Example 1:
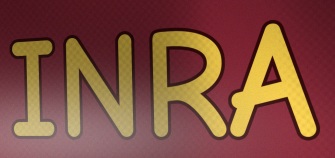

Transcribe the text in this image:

INRA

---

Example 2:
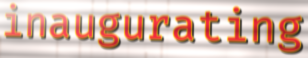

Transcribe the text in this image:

inaugurating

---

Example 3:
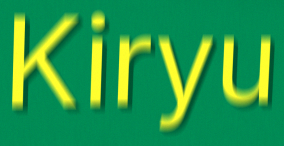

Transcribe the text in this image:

Kiryu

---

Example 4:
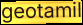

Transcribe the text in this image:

geotamil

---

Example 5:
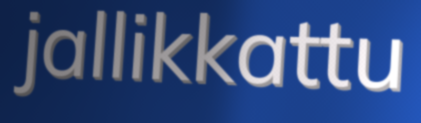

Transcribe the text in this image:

jallikkattu